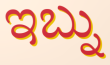
ಇಬ್ನು